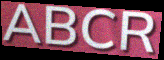
ABCR